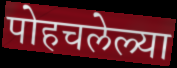
पोहचलेल्या